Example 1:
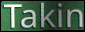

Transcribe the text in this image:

Takin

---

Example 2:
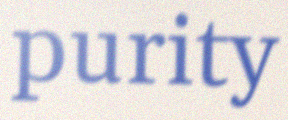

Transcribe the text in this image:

purity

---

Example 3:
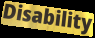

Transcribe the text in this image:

Disability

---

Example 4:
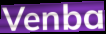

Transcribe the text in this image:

Venba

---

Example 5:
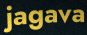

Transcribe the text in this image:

jagava